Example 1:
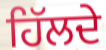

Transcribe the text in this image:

ਹਿੱਲਦੇ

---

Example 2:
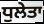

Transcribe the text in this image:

ਧੁਲੇਤਾ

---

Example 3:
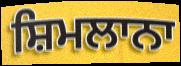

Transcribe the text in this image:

ਸ਼ਿਮਲਾਨਾ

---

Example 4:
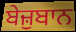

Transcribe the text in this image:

ਬੇਜ਼ੁਬਾਨ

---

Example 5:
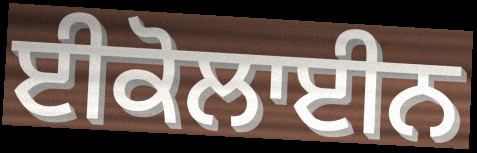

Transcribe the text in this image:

ਈਕੋਲਾਈਨ